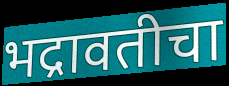
भद्रावतीचा